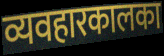
व्यवहारकालका